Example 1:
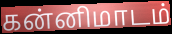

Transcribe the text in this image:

கன்னிமாடம்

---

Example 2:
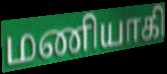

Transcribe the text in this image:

மணியாகி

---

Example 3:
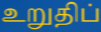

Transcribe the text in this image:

உறுதிப்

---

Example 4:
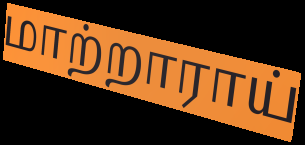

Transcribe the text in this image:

மாற்றாராய்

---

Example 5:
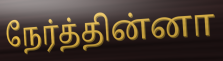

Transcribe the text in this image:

நேர்த்தின்னா